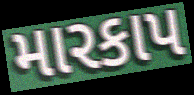
મારકાપ